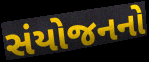
સંયોજનનો